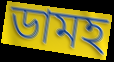
ডামহ